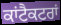
ਕਾਂਟੈਕਟਰਾਂ